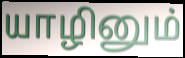
யாழினும்